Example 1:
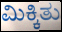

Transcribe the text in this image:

ಮಿಕ್ಕಿತು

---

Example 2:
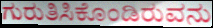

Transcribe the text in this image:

ಗುರುತಿಸಿಕೊಂಡಿರುವನು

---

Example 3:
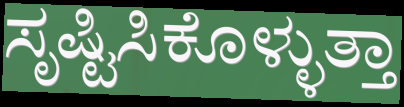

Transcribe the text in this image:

ಸೃಷ್ಟಿಸಿಕೊಳ್ಳುತ್ತಾ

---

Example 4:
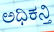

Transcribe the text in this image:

ಅಧಿಕನ್ತಿ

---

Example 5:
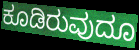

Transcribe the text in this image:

ಕೂಡಿರುವುದೂ